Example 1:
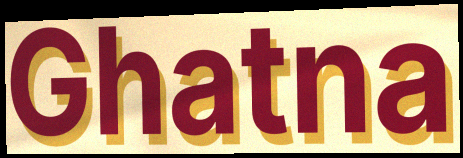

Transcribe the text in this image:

Ghatna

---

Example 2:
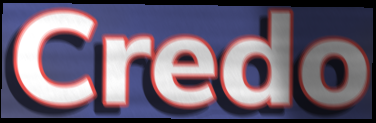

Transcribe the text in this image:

Credo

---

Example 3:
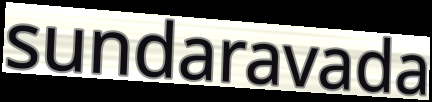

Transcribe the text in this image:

sundaravada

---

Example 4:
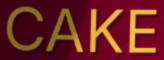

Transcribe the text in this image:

CAKE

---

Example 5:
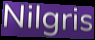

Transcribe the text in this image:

Nilgris